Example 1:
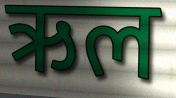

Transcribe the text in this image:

ऋल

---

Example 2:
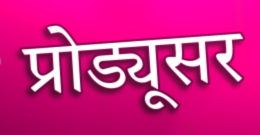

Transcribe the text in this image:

प्रोड्यूसर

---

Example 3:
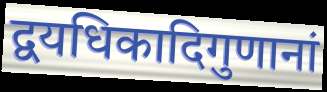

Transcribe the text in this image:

द्वयधिकादिगुणानां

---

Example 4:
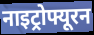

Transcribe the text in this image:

नाइट्रोफ्यूरन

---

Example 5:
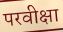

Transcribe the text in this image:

परवीक्षा